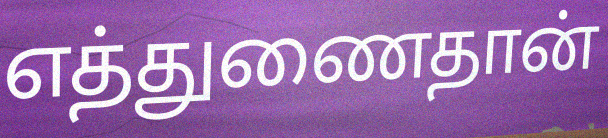
எத்துணைதான்